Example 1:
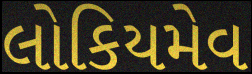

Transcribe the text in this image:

લોકિયમેવ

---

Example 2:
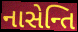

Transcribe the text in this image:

નાસેન્તિ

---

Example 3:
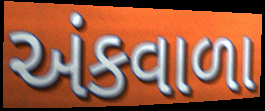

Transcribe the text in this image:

અંકવાળા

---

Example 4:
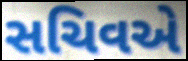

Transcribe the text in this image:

સચિવએ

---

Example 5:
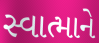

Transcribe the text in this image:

સ્વાત્માને